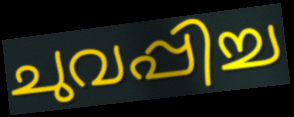
ചുവപ്പിച്ച